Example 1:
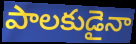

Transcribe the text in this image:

పాలకుడైనా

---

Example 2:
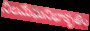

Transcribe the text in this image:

నీలమేఘనిభాకృతిం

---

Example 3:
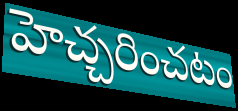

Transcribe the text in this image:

హెచ్చరించటం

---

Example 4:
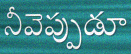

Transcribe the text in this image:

నీవెప్పుడూ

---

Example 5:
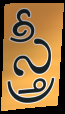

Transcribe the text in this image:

స్త్రీ